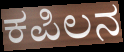
ಕಪಿಲನ